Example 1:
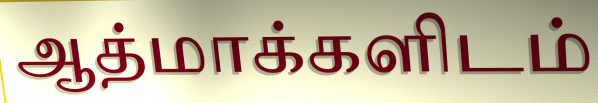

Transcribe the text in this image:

ஆத்மாக்களிடம்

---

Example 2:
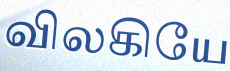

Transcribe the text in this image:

விலகியே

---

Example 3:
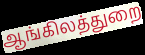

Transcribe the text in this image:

ஆங்கிலத்துறை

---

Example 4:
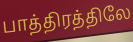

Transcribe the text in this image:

பாத்திரத்திலே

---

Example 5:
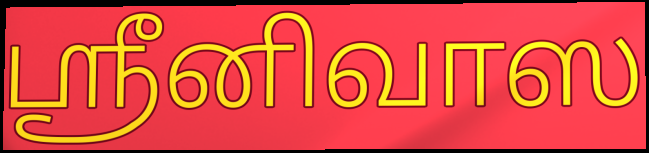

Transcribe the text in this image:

ஸ்ரீனிவாஸ